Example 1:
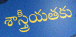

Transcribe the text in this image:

శాస్త్రీయతకు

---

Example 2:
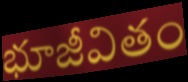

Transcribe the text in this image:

భూజీవితం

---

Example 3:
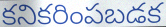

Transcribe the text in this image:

కనికరింపబడక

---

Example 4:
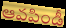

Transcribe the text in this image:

ఆవపిండీ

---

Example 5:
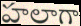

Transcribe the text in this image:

హలాగా